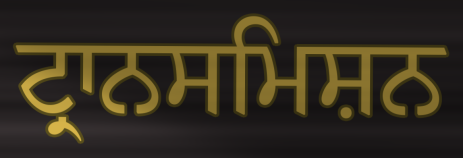
ਟ੍ਰਾਨਸਮਿਸ਼ਨ